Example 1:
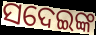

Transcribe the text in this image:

ସଦେଇଙ୍କ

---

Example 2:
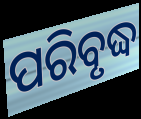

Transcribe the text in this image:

ପରିବୃଦ୍ଧ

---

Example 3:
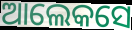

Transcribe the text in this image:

ଆଲେକସେ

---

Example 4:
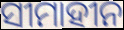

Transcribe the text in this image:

ସୀମାହୀନ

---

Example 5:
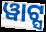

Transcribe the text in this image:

ୱାଟ୍ସ